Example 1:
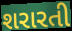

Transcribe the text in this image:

શરારતી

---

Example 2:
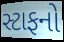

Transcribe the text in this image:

સ્ટાફનો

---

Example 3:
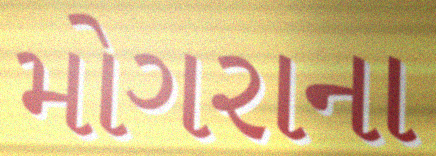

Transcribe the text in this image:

મોગરાના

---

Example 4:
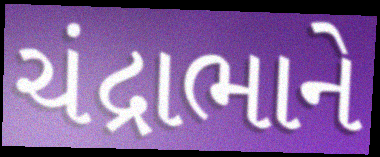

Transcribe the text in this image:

ચંદ્રાભાને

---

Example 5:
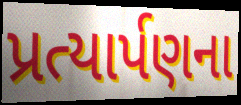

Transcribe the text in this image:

પ્રત્યાર્પણના